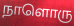
நாளொரு